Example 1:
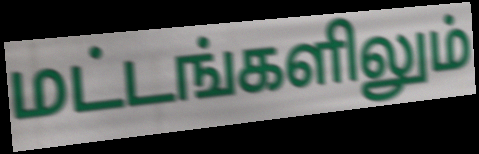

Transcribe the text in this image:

மட்டங்களிலும்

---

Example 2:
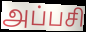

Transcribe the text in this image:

அப்பசி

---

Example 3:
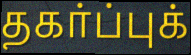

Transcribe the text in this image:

தகர்ப்புக்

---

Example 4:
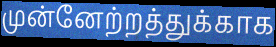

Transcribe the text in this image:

முன்னேற்றத்துக்காக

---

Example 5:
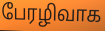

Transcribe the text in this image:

பேரழிவாக